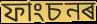
ফাংচনৰ